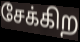
சேக்கிற